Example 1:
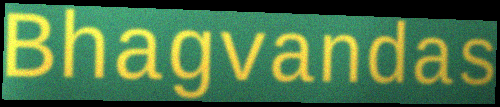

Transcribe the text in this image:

Bhagvandas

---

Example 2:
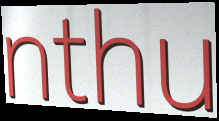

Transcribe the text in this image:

nthu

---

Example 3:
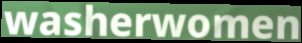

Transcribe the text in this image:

washerwomen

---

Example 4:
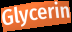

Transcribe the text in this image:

Glycerin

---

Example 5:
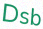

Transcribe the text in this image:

Dsb